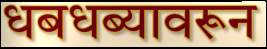
धबधब्यावरून